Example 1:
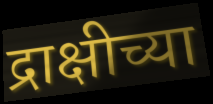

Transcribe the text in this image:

द्राक्षीच्या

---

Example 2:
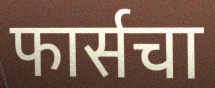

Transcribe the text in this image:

फार्सचा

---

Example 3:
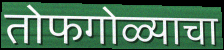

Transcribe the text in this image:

तोफगोळ्याचा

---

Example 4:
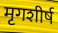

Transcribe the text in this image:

मृगशीर्ष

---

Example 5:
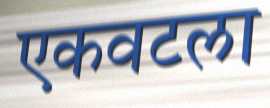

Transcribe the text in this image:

एकवटला